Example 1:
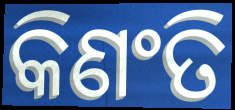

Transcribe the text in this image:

କିଣଂତି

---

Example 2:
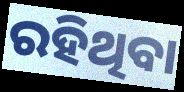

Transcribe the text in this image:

ରହିଥିବା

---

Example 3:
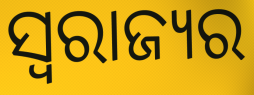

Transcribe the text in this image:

ସ୍ୱରାଜ୍ୟର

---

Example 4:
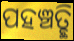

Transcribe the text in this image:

ପହଞ୍ଚତ୍ଛି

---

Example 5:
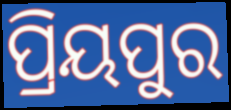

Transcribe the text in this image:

ପ୍ରିୟପୁର